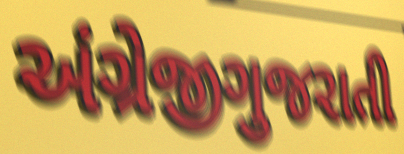
અંગ્રેજીગુજરાતી